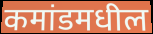
कमांडमधील